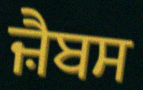
ਜ਼ੈਬਸ